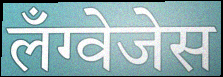
लँग्वेजेस